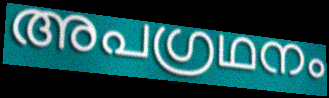
അപഗ്രഥനം